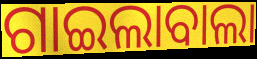
ଗାଇଲାବାଲା